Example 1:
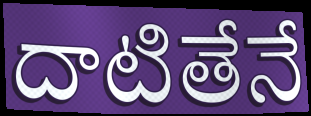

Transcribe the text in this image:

దాటితేనే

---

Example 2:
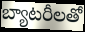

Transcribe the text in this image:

బ్యాటరీలతో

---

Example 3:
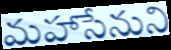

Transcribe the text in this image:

మహాసేనుని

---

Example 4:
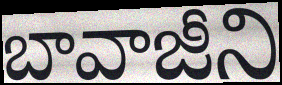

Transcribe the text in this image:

బావాజీని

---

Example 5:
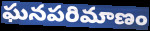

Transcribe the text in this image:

ఘనపరిమాణం